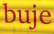
buje